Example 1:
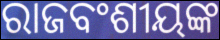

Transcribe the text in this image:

ରାଜବଂଶୀୟଙ୍କ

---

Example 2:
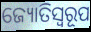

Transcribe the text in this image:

ଜ୍ୟୋତିସ୍ୱରୂପ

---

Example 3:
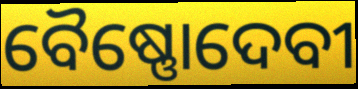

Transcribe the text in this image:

ବୈଷ୍ଣୋଦେବୀ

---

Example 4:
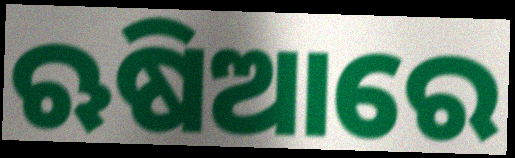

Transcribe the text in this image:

ଋଷିଆରେ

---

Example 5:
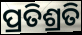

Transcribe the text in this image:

ପ୍ରତିଶ୍ରତି